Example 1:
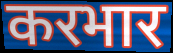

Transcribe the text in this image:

करभार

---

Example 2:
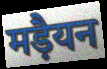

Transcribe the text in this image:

मड़ैयन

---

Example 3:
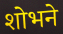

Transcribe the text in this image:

शोभने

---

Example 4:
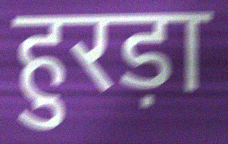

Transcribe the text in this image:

हुरड़ा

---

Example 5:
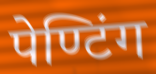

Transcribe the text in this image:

पेण्टिंग